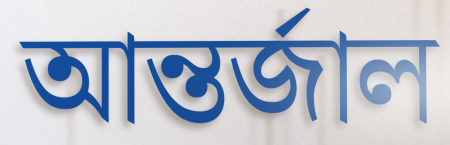
আন্তর্জাল